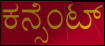
ಕನ್ಸೆಂಟ್